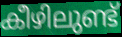
കീഴിലുണ്ട്